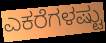
ಎಕರೆಗಳಷ್ಟು